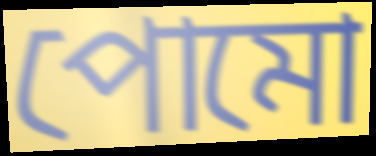
পোমো